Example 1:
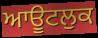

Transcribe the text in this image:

ਆਊਟਲੁਕ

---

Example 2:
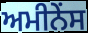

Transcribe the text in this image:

ਅਮੀਨੇਂਸ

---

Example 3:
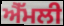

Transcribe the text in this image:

ਐੱਮਲੀ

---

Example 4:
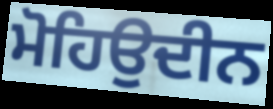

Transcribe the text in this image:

ਮੋਹਿਉਦੀਨ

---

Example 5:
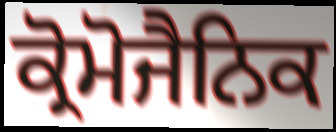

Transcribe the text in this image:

ਕ੍ਰੋਮੋਜੈਨਿਕ